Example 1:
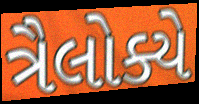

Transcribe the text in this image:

ત્રૈલોક્યે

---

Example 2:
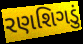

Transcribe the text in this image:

રણશિગડું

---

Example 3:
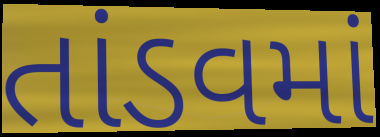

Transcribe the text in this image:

તાંડવમાં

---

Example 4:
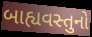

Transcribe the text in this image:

બાહ્યવસ્તુનો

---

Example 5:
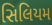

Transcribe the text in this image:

સિલિયમ